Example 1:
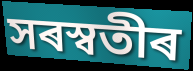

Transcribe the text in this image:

সৰস্বতীৰ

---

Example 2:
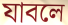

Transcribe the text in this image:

যাবলে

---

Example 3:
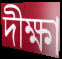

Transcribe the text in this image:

দীক্ষা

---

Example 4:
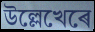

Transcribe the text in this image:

উল্লেখেৰে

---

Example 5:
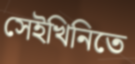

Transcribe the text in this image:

সেইখিনিতে